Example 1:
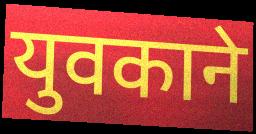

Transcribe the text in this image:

युवकाने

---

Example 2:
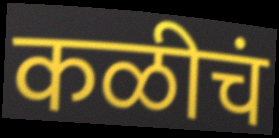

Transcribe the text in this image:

कळीचं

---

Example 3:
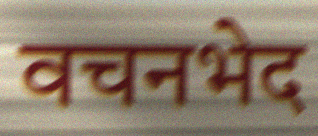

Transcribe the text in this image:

वचनभेद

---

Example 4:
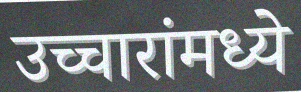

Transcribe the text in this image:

उच्चारांमध्ये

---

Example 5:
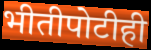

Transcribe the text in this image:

भीतीपोटीही